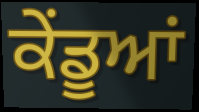
ਕੇਂਡੂਆਂ